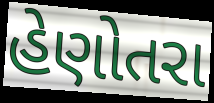
હેણોતરા